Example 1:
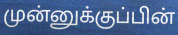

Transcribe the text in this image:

முன்னுக்குப்பின்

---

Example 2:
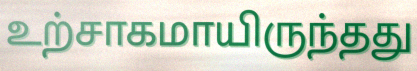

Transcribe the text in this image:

உற்சாகமாயிருந்தது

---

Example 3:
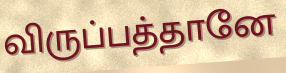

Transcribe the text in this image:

விருப்பத்தானே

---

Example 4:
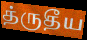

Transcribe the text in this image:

த்ருதீய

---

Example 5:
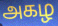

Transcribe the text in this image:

அகழ